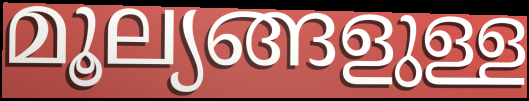
മൂല്യങ്ങളുള്ള